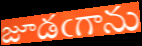
జూడఁగాను